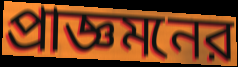
প্রাজ্ঞমনের